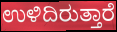
ಉಳಿದಿರುತ್ತಾರೆ